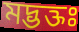
মদ্ভক্তঃ